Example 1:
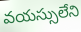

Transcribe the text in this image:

వయస్సులేని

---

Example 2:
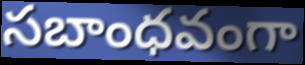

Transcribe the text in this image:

సబాంధవంగా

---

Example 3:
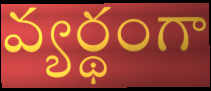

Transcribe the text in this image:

వ్యర్థంగా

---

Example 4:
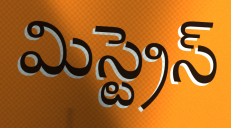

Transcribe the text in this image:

మిస్ట్రెస్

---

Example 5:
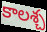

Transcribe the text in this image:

కాలశ్చ